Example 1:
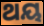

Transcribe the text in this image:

ଥୟ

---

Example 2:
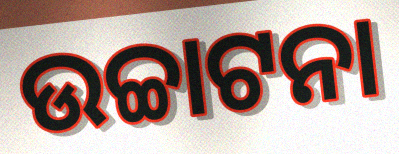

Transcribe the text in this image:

ଉଚ୍ଚାଟନା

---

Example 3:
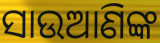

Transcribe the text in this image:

ସାଉଆଣିଙ୍କ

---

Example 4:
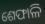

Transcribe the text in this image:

ଶେଫାଳି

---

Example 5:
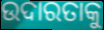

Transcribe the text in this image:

ଉଦାରତାକୁ